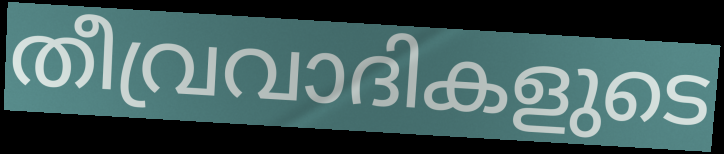
തീവ്രവാദികളുടെ